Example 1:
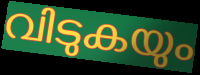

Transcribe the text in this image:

വിടുകയും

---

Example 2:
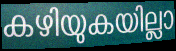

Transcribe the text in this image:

കഴിയുകയില്ലാ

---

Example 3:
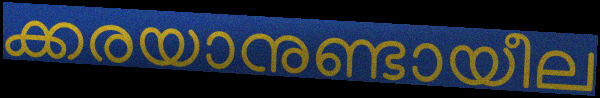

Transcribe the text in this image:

ക്കരയാനുണ്ടായീല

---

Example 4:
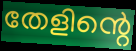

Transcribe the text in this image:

തേളിന്റെ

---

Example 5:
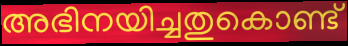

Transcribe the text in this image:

അഭിനയിച്ചതുകൊണ്ട്